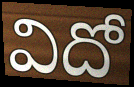
విదో